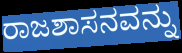
ರಾಜಶಾಸನವನ್ನು